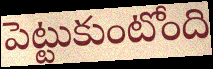
పెట్టుకుంటోంది